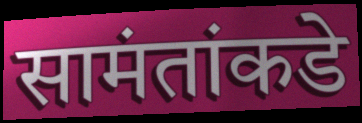
सामंतांकडे